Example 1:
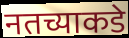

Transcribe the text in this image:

नतच्याकडे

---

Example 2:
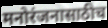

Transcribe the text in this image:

मनोरंजनासाठीच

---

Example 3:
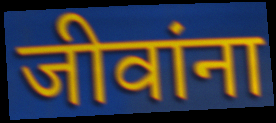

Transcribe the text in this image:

जीवांना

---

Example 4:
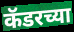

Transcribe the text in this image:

कॅडरच्या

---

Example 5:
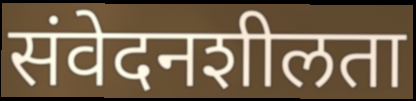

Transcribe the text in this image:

संवेदनशीलता